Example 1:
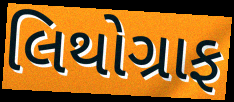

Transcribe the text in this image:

લિથોગ્રાફ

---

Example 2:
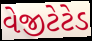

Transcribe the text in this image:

વેજીટેટેડ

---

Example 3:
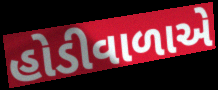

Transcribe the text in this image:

હોડીવાળાએ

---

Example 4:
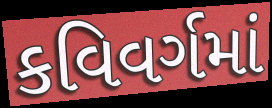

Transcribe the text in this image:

કવિવર્ગમાં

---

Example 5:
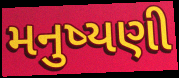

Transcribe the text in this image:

મનુષ્યણી